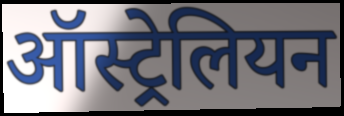
ऑस्ट्रेलियन